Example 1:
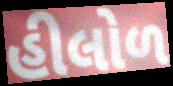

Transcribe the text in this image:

હીલોળ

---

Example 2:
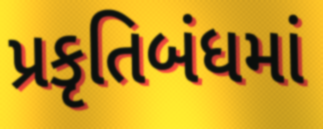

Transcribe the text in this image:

પ્રકૃતિબંધમાં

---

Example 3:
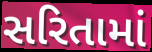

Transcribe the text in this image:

સરિતામાં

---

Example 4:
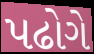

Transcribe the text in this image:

પઢોગે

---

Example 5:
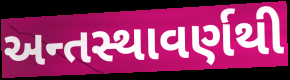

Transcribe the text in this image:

અન્તસ્થાવર્ણથી